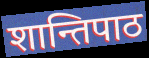
शान्तिपाठ